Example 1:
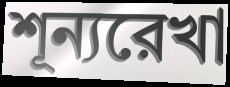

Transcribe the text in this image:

শূন্যরেখা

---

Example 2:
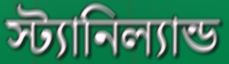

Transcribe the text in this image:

স্ট্যানিল্যান্ড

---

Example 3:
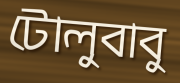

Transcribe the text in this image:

টোলুবাবু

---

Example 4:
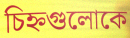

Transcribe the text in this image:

চিহ্নগুলোকে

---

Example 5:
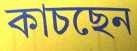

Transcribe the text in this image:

কাচছেন